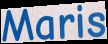
Maris